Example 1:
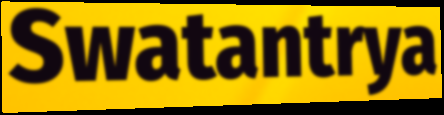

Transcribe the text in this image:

Swatantrya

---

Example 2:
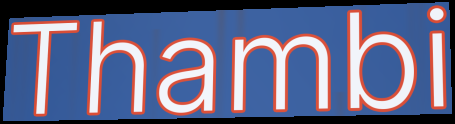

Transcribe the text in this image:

Thambi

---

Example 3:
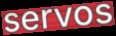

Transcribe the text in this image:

servos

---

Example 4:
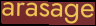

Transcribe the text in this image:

arasage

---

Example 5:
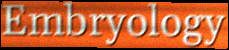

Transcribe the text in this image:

Embryology